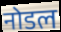
नोडल